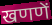
खणणें